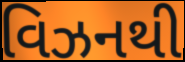
વિઝનથી